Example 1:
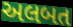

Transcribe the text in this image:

અલબત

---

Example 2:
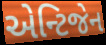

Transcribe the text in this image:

એન્ટિજેન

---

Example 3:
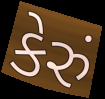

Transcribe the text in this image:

કેરું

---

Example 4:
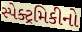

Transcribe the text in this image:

સ્પેક્ટ્રમિકીનો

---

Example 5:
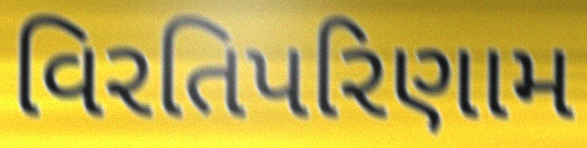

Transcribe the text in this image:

વિરતિપરિણામ